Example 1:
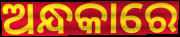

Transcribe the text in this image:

ଅନ୍ଧକାରେ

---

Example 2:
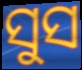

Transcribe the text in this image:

ସୁସ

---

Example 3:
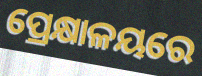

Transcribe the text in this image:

ପ୍ରେକ୍ଷାଳୟରେ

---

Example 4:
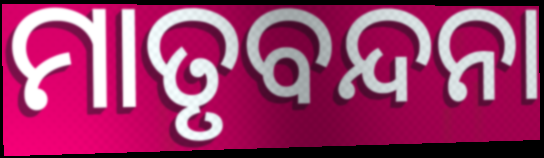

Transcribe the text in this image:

ମାତୃବନ୍ଦନା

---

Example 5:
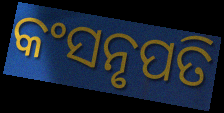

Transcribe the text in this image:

କଂସନୃପତି